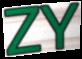
ZY